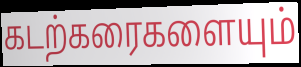
கடற்கரைகளையும்